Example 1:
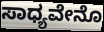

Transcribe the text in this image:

ಸಾಧ್ಯವೇನೊ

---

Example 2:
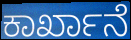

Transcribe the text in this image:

ಕಾರ್ಖಾನೆ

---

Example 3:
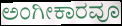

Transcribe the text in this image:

ಅಂಗೀಕಾರವೂ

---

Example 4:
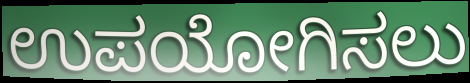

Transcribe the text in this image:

ಉಪಯೋಗಿಸಲು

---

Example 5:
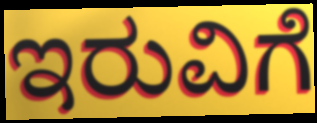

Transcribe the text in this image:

ಇರುವಿಗೆ